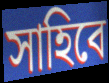
সাহিবে